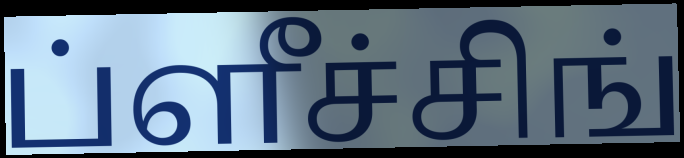
ப்ளீச்சிங்